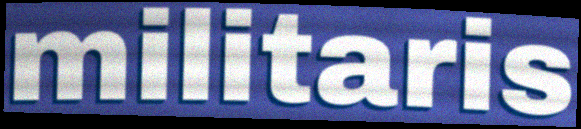
militaris